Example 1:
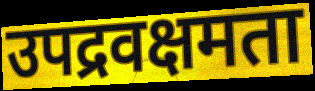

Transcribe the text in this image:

उपद्रवक्षमता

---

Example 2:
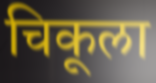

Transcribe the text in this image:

चिकूला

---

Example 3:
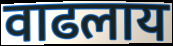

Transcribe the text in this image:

वाढलाय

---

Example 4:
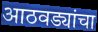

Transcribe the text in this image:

आठवड्यांचा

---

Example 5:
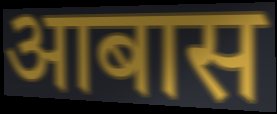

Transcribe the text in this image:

आबास